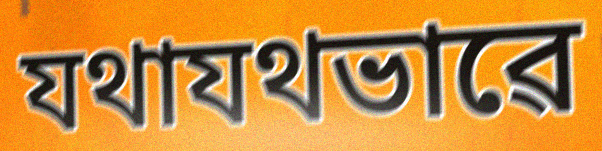
যথাযথভাৱে